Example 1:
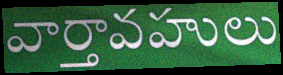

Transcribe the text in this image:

వార్తావహులు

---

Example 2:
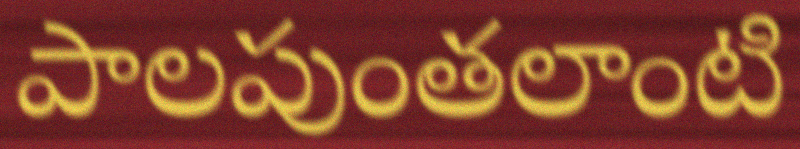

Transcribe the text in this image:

పాలపుంతలాంటి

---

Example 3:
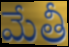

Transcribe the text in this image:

మేతీ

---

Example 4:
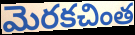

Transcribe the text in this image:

మెరకచింత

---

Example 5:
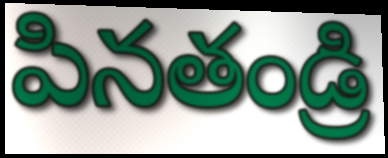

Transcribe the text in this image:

పినతండ్రి